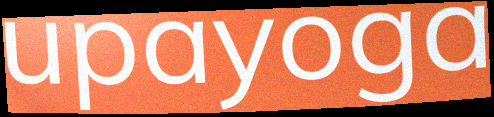
upayoga